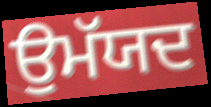
ਉਮੱਯਦ